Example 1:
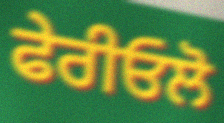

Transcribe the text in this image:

ਫੇਰੀਓਲੋ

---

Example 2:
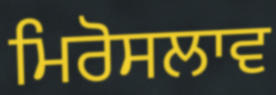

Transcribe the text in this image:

ਮਿਰੋਸਲਾਵ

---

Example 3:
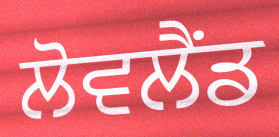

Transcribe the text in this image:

ਲੋਵਲੈਂਡ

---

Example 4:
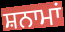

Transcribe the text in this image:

ਸ਼ਨਾਮਾਂ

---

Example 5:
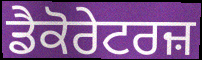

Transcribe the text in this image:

ਡੈਕੋਰੇਟਰਜ਼